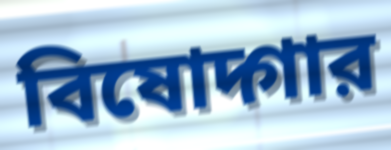
বিষোদ্গার